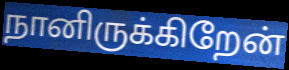
நானிருக்கிறேன்